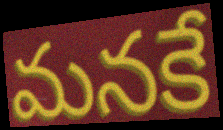
మనకే